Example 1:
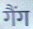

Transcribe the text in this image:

गैंग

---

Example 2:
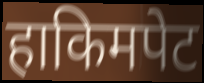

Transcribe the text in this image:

हाकिमपेट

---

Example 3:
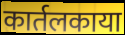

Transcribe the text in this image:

कार्तलकाया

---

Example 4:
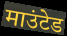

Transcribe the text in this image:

माउंटेड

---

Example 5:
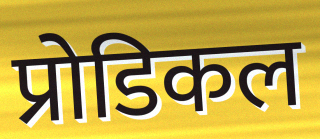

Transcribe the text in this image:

प्रोडिकल